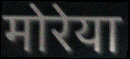
मोरेया